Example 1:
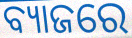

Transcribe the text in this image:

ବ୍ୟାଜରେ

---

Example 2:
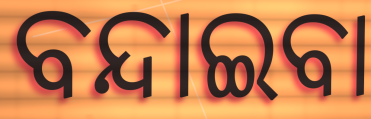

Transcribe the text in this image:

ବନ୍ଦାଇବା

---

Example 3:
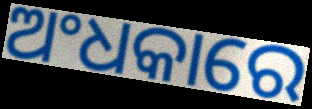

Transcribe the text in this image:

ଅଂଧକାରେ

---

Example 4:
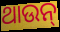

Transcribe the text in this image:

ଥାଉନ୍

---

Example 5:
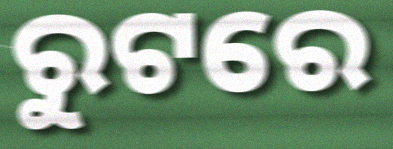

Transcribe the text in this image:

ରୁଟରେ